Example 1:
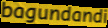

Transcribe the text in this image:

bagundandi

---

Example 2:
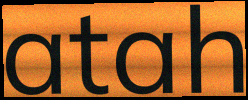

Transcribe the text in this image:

atah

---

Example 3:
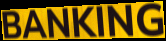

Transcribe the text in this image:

BANKING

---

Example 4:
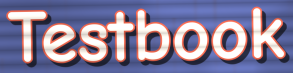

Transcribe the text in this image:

Testbook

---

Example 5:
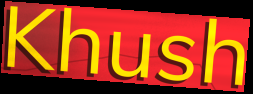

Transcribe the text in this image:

Khush